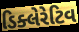
ડિક્લેરેટિવ